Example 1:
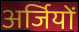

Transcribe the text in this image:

अर्जियों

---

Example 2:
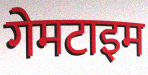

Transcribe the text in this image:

गेमटाइम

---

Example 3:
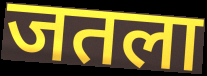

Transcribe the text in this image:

जतला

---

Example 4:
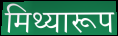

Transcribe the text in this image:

मिथ्यारूप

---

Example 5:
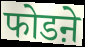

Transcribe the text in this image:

फोडऩे